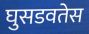
घुसडवतेस